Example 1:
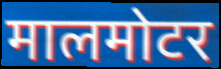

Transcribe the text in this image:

मालमोटर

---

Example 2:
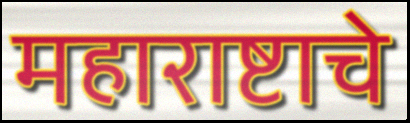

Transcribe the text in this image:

महाराष्टाचे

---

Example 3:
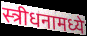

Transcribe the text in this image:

स्त्रीधनामध्ये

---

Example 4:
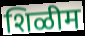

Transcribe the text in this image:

शिळीम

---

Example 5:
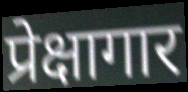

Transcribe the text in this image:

प्रेक्षागार